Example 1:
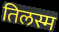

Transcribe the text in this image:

तिलस्म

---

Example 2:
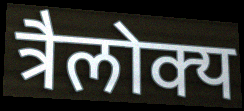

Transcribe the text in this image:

त्रैलोक्य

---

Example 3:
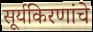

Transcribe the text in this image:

सूर्यकिरणांचे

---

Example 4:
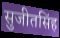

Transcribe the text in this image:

सुजीतसिंह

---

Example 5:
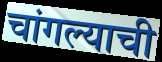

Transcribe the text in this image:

चांगल्याची